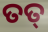
ତତ୍